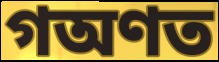
গঅণত